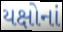
યક્ષોનાં